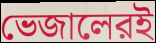
ভেজালেরই